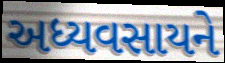
અધ્યવસાયને